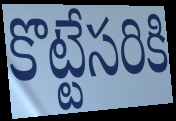
కొట్టేసరికి